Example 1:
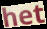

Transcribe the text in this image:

het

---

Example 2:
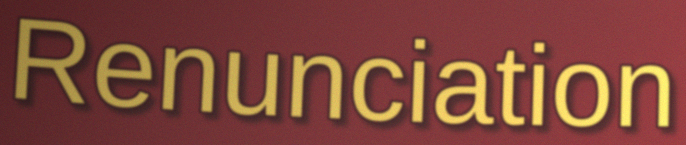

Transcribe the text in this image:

Renunciation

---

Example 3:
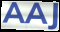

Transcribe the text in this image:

AAJ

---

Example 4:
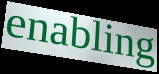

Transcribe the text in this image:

enabling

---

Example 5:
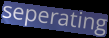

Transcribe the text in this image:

seperating